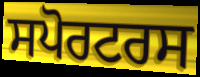
ਸਪੋਰਟਰਸ